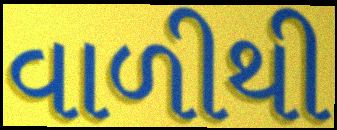
વાળીથી